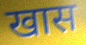
खास